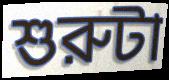
শুরুটা